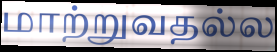
மாற்றுவதல்ல